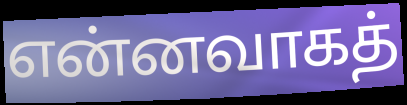
என்னவாகத்